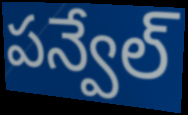
పన్వేల్